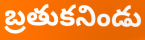
బ్రతుకనిండు